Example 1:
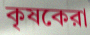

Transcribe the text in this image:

কৃষকেরা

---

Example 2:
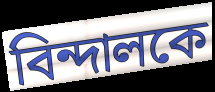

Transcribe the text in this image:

বিন্দালকে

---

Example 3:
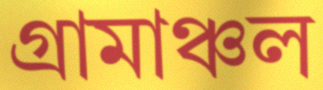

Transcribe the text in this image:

গ্রামাঞ্চল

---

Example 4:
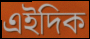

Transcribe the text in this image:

এইদিক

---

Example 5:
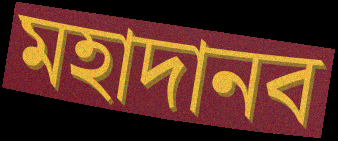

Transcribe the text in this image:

মহাদানব